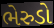
ભેરુડો